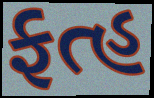
ફત્હ